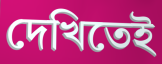
দেখিতেই